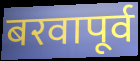
बरवापूर्व